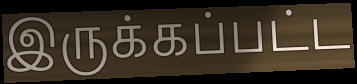
இருக்கப்பட்ட